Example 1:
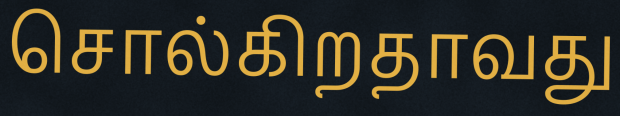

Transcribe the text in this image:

சொல்கிறதாவது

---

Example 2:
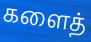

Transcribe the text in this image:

களைத்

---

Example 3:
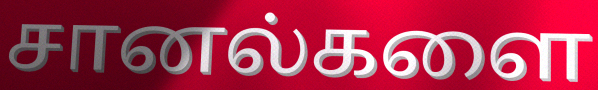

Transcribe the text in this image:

சானல்களை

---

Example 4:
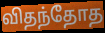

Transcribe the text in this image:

விதந்தோத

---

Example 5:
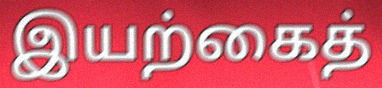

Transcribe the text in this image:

இயற்கைத்